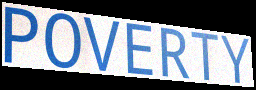
POVERTY